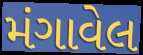
મંગાવેલ